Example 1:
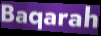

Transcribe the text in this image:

Baqarah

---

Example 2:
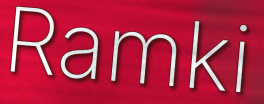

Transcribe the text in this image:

Ramki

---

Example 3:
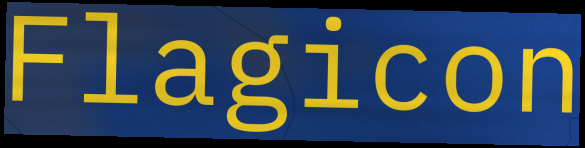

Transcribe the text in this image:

Flagicon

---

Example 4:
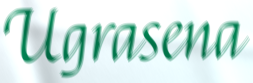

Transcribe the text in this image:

Ugrasena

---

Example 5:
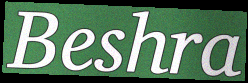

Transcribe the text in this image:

Beshra